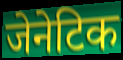
जेनेटिक